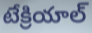
టేక్రియాల్